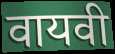
वायवी